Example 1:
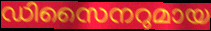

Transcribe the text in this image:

ഡിസൈനറുമായ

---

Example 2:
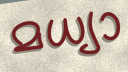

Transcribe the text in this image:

മധ്യാ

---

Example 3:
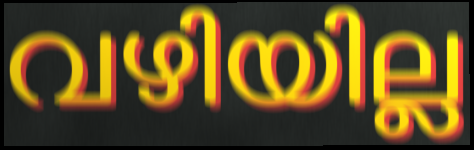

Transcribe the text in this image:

വഴിയില്ല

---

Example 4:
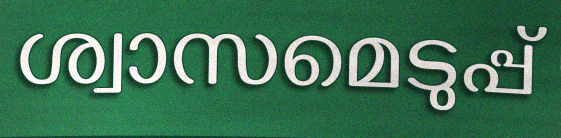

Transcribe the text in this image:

ശ്വാസമെടുപ്പ്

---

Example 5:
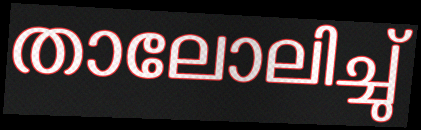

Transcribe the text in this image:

താലോലിച്ചു്